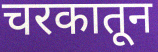
चरकातून